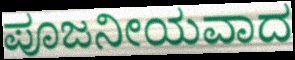
ಪೂಜನೀಯವಾದ